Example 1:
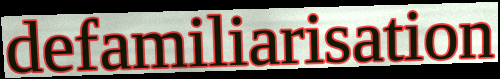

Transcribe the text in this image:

defamiliarisation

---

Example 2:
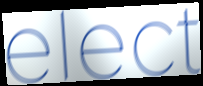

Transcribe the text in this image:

elect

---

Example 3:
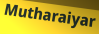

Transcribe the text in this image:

Mutharaiyar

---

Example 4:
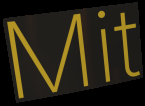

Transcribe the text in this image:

Mit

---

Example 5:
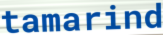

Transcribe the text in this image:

tamarind